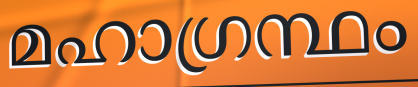
മഹാഗ്രന്ഥം